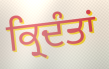
ਕ੍ਰਿਦੰਤਾਂ